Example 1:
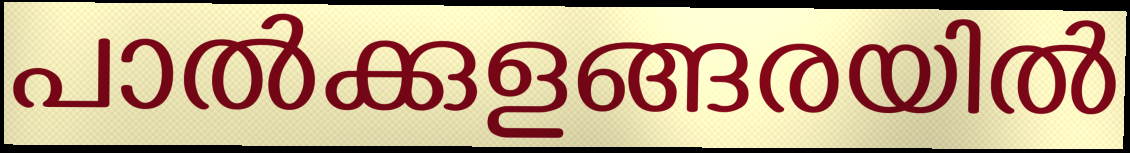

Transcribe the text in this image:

പാൽക്കുളങ്ങരയിൽ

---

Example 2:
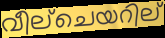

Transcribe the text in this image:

വീല്ചെയറില്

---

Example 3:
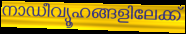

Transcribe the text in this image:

നാഡീവ്യൂഹങ്ങളിലേക്ക്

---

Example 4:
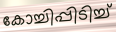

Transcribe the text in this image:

കോച്ചിപ്പിടിച്ച്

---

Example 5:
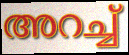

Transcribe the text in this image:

അറച്ച്